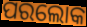
ପରଲୋକ